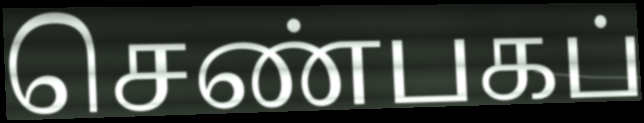
செண்பகப்